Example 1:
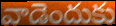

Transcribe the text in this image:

వాడెందుకు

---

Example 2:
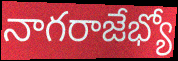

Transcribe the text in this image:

నాగరాజేభ్యో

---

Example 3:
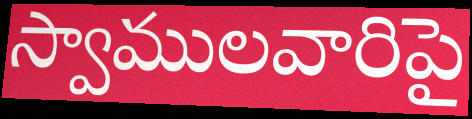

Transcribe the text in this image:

స్వాములవారిపై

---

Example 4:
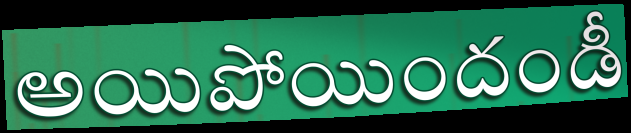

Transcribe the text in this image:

అయిపోయిందండీ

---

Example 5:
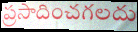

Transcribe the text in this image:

ప్రసాదించగలదు